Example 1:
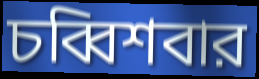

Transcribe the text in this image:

চব্বিশবার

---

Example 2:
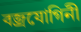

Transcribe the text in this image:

বজ্রযোগিনী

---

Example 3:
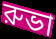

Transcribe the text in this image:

রুভা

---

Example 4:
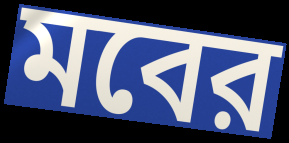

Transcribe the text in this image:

মবের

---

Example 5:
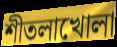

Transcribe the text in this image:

শীতলাখোলা